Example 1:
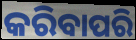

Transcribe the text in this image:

କରିବାପରି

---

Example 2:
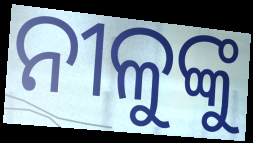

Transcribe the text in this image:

ନୀଳୁଙ୍କୁ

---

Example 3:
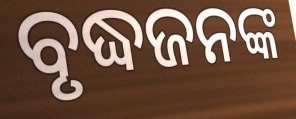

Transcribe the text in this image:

ବୃଦ୍ଧଜନଙ୍କ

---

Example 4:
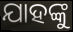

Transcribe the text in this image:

ଯାହଙ୍କୁ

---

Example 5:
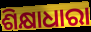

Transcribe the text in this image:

ଶିକ୍ଷାଧାରା